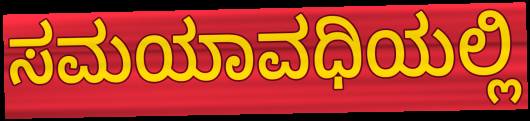
ಸಮಯಾವಧಿಯಲ್ಲಿ